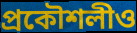
প্রকৌশলীও